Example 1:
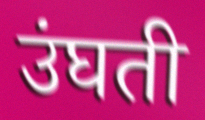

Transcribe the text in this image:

उंघती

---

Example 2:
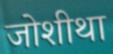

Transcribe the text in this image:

जोशीथा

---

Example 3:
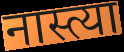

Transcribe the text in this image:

नास्त्या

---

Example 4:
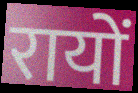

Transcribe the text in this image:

रायों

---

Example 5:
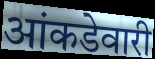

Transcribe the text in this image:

आंकडेवारी